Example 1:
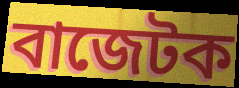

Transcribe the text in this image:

বাজেটক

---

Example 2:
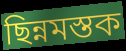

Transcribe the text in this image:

ছিন্নমস্তক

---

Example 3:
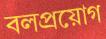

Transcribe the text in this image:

বলপ্ৰয়োগ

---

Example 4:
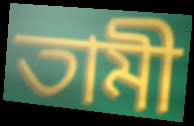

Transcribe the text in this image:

তামী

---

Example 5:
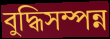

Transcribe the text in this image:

বুদ্ধিসম্পন্ন